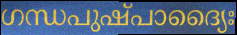
ഗന്ധപുഷ്പാദ്യൈഃ